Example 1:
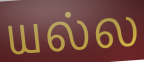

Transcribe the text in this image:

யல்ல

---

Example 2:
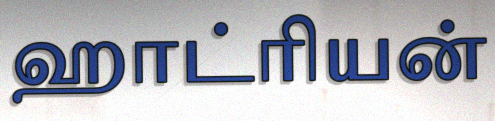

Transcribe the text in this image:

ஹாட்ரியன்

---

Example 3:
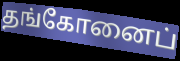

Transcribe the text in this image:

தங்கோனைப்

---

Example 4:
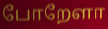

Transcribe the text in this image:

போறேளா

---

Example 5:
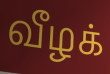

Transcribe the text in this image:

வீழக்